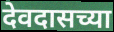
देवदासच्या